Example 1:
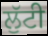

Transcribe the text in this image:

ਲੁੱਟੀ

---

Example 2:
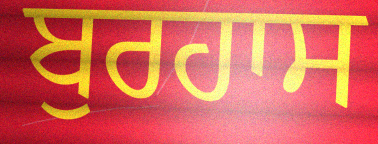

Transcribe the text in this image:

ਬੁਰਹਾਸ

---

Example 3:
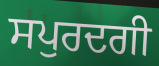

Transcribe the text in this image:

ਸਪੁਰਦਗੀ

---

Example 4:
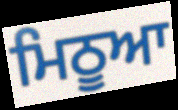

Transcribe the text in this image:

ਮਿਠੂਆ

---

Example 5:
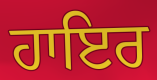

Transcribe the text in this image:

ਹਾਇਰ